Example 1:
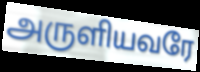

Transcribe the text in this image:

அருளியவரே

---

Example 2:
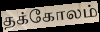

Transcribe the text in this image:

தக்கோலம்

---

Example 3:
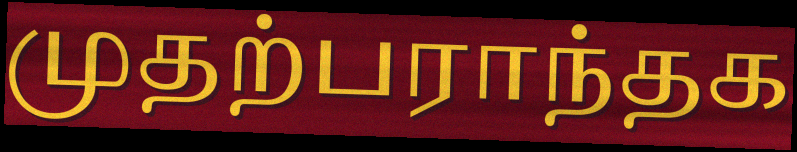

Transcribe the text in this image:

முதற்பராந்தக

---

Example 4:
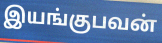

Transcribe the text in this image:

இயங்குபவன்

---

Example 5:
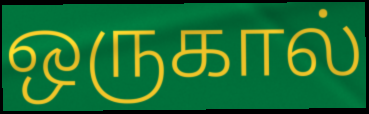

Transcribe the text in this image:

ஒருகால்